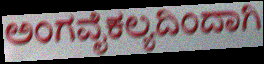
ಅಂಗವೈಕಲ್ಯದಿಂದಾಗಿ